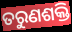
ତରୁଣଶକ୍ତି